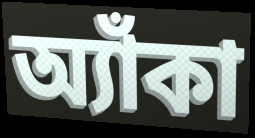
অ্যাঁকা